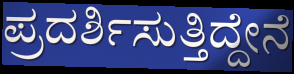
ಪ್ರದರ್ಶಿಸುತ್ತಿದ್ದೇನೆ